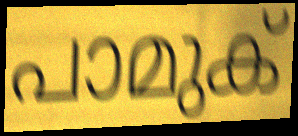
പാമുക്